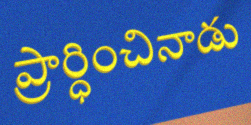
ప్రార్ధించినాడు